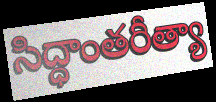
సిద్ధాంతరీత్యా